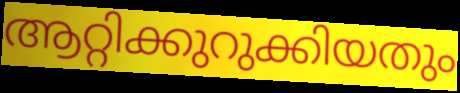
ആറ്റിക്കുറുക്കിയതും